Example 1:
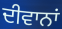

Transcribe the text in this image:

ਦੀਵਾਨਾਂ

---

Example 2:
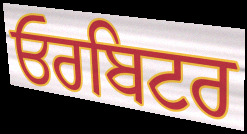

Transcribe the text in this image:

ਓਰਬਿਟਰ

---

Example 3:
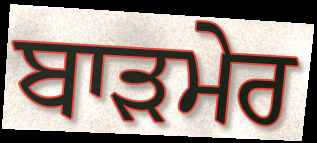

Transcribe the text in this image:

ਬਾੜਮੇਰ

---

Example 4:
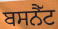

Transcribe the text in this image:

ਬਸਨੈੱਟ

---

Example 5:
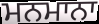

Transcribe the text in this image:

ਮਨਮਾਨਾ